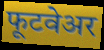
फूटवेअर